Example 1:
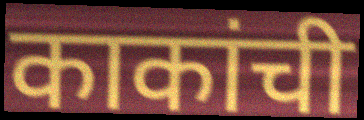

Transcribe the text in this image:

काकांची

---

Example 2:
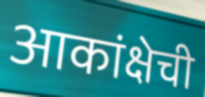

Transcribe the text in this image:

आकांक्षेची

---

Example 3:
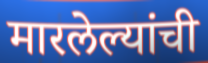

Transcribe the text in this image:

मारलेल्यांची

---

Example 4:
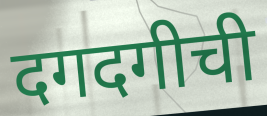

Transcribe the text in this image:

दगदगीची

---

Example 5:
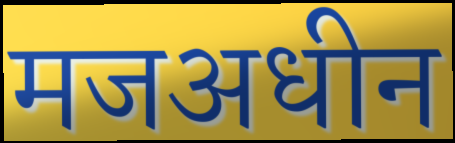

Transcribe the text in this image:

मजअधीन